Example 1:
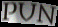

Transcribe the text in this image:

PUN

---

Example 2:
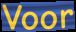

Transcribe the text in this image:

Voor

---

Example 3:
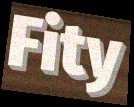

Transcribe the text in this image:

Fity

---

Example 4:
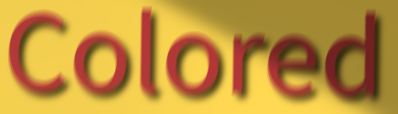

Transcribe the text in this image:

Colored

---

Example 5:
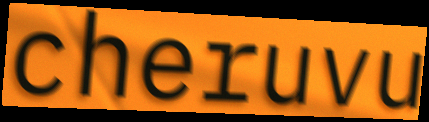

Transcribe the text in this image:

cheruvu